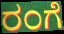
ರಂಗೆ